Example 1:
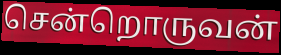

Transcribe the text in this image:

சென்றொருவன்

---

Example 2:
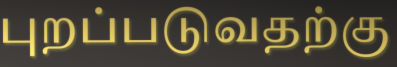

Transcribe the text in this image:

புறப்படுவதற்கு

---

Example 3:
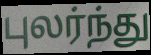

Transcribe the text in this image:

புலர்ந்து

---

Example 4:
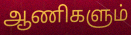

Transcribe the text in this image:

ஆணிகளும்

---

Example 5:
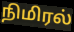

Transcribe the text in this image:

நிமிரல்